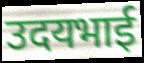
उदयभाई